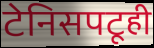
टेनिसपटूही